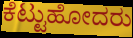
ಕೆಟ್ಟುಹೋದರು